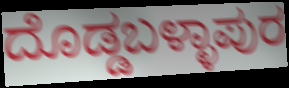
ದೊಡ್ಡಬಳ್ಳಾಪುರ